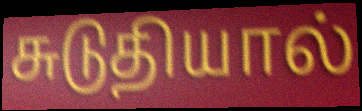
சுடுதியால்